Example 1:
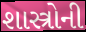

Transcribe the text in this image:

શાસ્ત્રોની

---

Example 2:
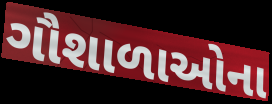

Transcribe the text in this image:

ગૌશાળાઓના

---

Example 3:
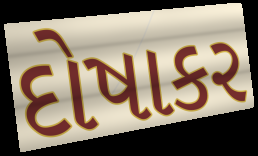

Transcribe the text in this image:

દોષાકર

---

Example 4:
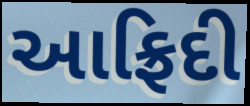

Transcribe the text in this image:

આફ્રિદી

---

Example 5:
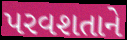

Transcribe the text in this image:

પરવશતાને